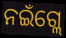
ନଇଁଗ୍ଲେ